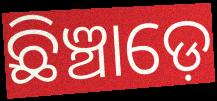
ଛିଞ୍ଚାଡ଼େ